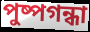
পুষ্পগন্ধা